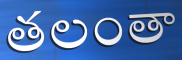
తలంతా